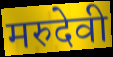
मरुदेवी